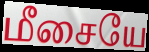
மீசையே